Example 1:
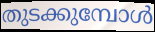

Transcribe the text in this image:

തുടക്കുമ്പോൾ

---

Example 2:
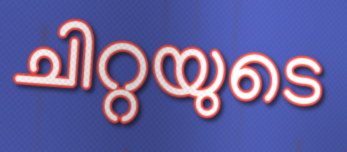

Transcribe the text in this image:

ചിറ്റയുടെ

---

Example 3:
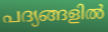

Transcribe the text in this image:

പദ്യങ്ങളിൽ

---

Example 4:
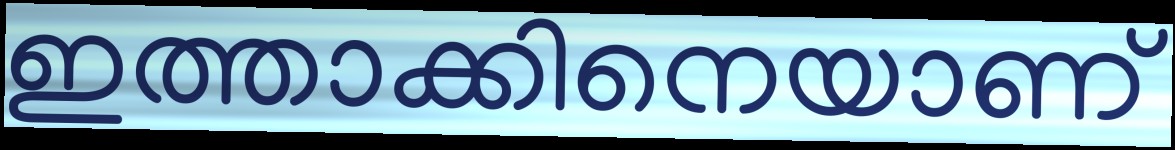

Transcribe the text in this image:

ഇത്താക്കിനെയാണ്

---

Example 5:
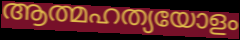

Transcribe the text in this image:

ആത്മഹത്യയോളം